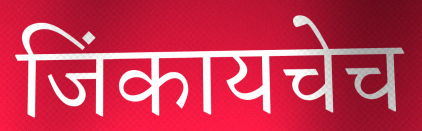
जिंकायचेच